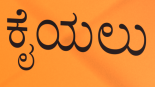
ಕೈಯಲು